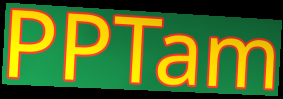
PPTam